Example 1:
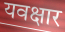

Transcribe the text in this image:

यवक्षार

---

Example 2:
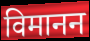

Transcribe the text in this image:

विमानन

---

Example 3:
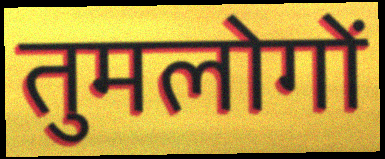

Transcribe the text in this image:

तुमलोगों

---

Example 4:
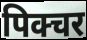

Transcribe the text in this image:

पिक्चर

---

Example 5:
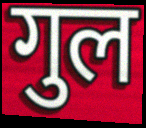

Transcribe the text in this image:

गुल